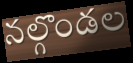
నల్గొండల